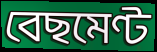
বেছমেণ্ট